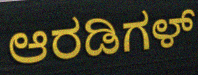
ಆರಡಿಗಳ್